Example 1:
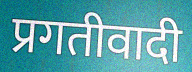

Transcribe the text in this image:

प्रगतीवादी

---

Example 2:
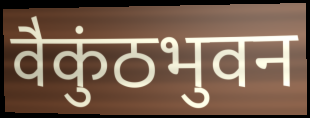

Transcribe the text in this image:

वैकुंठभुवन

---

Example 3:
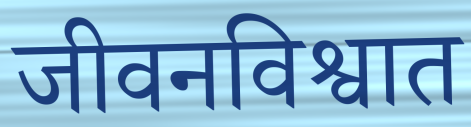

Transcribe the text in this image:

जीवनविश्वात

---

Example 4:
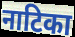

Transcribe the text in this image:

नाटिका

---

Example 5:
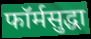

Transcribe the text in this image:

फॉर्मसुद्धा